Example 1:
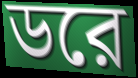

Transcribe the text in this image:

ডরে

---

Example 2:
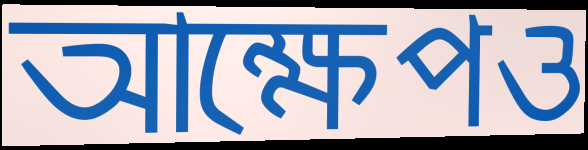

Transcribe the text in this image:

আক্ষেপও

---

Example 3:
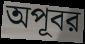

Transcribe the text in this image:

অপূবর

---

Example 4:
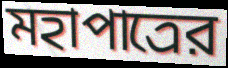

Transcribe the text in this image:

মহাপাত্রের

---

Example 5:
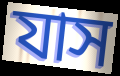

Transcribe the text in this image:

যাস